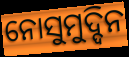
ନୋସୁମୁଦ୍ଦିନ